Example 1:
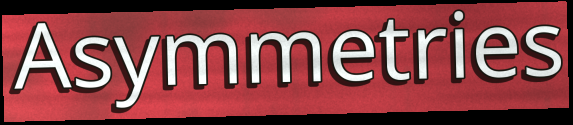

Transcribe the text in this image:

Asymmetries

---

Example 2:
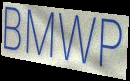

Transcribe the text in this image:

BMWP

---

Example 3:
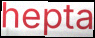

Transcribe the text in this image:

hepta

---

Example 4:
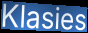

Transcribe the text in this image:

Klasies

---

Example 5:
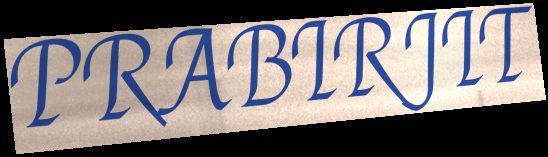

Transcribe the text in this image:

PRABIRJIT